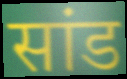
सांड